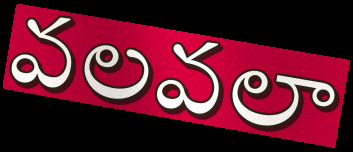
వలవలా